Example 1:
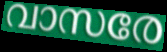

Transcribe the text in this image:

വാസരേ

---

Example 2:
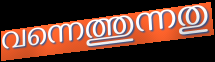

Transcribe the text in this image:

വന്നെത്തുന്നതു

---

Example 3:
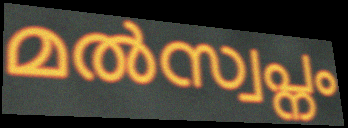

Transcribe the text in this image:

മൽസ്വപ്നം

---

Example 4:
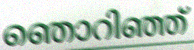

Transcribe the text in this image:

ഞൊറിഞ്ഞ്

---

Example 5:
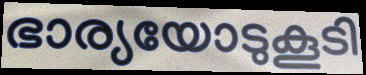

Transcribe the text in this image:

ഭാര്യയോടുകൂടി